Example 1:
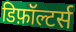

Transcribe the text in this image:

डिफ़ॉल्टर्स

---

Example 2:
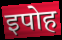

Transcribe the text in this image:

इपोह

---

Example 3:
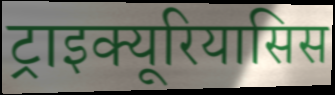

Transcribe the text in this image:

ट्राइक्यूरियासिस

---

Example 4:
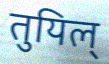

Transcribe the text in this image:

तुयिल्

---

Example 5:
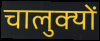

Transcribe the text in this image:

चालुक्यों